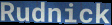
Rudnick